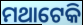
ମଥାଟେକି